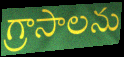
గ్రాసాలను